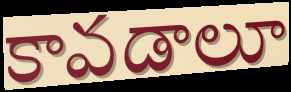
కావడాలూ